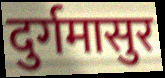
दुर्गमासुर